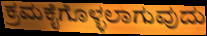
ಕ್ರಮಕೈಗೊಳ್ಳಲಾಗುವುದು